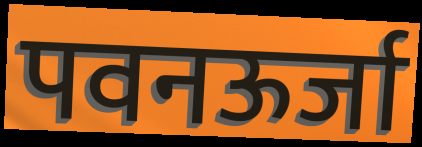
पवनऊर्जा